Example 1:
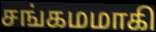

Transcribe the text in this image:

சங்கமமாகி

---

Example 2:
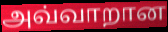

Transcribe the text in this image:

அவ்வாறான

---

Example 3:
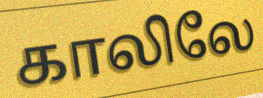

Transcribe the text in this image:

காலிலே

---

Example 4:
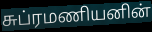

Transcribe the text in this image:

சுப்ரமணியனின்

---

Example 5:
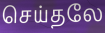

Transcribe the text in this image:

செய்தலே